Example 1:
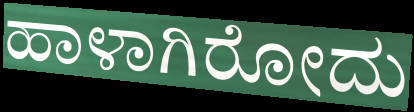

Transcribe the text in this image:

ಹಾಳಾಗಿರೋದು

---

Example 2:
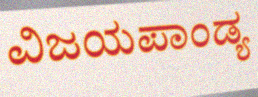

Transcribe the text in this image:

ವಿಜಯಪಾಂಡ್ಯ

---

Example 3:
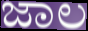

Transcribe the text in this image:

ಜಾಲ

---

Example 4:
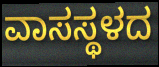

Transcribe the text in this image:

ವಾಸಸ್ಥಳದ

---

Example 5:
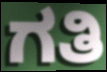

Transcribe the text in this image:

ಗತಿ